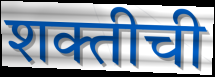
शक्तीची